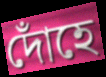
দোঁহে